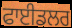
ਫਾਈਡਲਰ